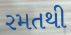
રમતથી